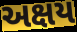
અક્ષય